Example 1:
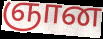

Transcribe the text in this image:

ஞான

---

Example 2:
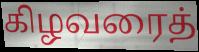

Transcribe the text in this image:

கிழவரைத்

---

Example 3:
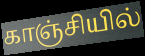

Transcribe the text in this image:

காஞ்சியில்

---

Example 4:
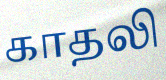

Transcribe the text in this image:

காதலி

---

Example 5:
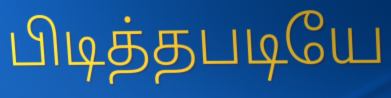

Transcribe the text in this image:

பிடித்தபடியே